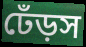
ঢেঁড়স